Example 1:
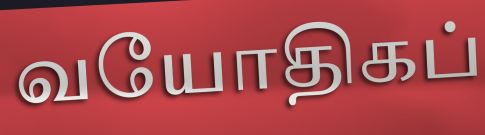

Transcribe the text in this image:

வயோதிகப்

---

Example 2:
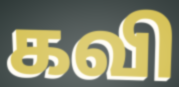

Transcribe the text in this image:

கவி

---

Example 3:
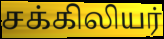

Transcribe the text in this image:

சக்கிலியர்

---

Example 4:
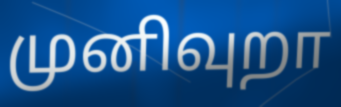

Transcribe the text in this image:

முனிவுறா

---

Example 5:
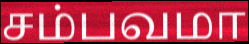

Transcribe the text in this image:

சம்பவமா